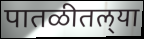
पातळीतल्या